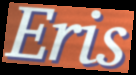
Eris